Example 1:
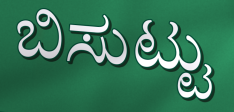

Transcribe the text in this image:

ಬಿಸುಟ್ಟು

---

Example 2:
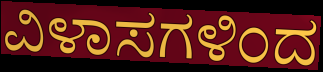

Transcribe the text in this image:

ವಿಳಾಸಗಳಿಂದ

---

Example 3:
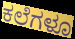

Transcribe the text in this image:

ಕಲೆಗಳೂ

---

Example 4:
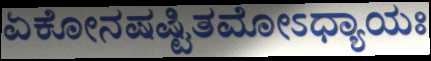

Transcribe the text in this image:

ಏಕೋನಷಷ್ಟಿತಮೋಽಧ್ಯಾಯಃ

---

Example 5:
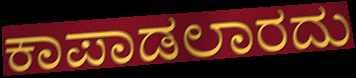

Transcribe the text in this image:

ಕಾಪಾಡಲಾರದು